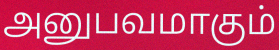
அனுபவமாகும்